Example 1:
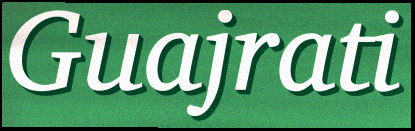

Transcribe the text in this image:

Guajrati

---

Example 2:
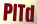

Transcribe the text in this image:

PITd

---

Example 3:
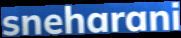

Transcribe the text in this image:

sneharani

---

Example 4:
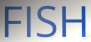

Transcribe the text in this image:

FISH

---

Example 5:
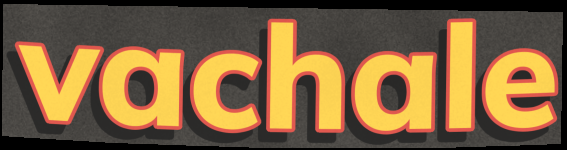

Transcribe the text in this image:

vachale